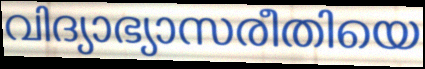
വിദ്യാഭ്യാസരീതിയെ